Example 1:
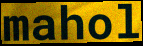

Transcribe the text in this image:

mahol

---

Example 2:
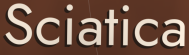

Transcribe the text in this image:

Sciatica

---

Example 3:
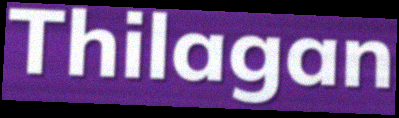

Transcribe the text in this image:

Thilagan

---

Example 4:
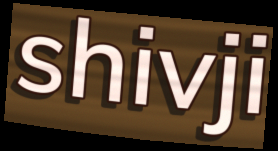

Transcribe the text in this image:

shivji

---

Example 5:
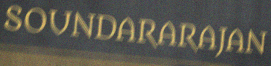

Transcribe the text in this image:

SOUNDARARAJAN